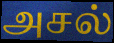
அசல்